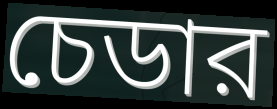
চেডার